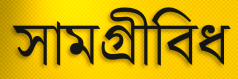
সামগ্ৰীবিধ